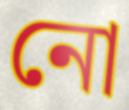
নো